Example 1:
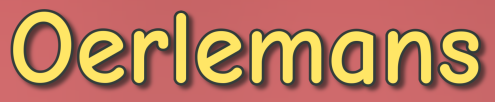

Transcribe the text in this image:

Oerlemans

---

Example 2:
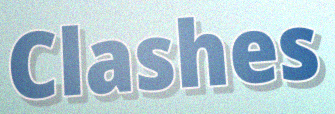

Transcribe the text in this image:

Clashes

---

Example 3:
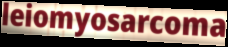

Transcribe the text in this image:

leiomyosarcoma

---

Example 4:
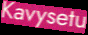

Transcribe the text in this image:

Kavysetu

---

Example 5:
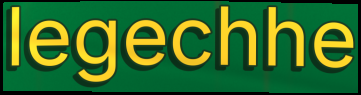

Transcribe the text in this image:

legechhe